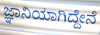
ಜ್ಞಾನಿಯಾಗಿದ್ದೇನೆ